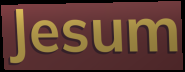
Jesum